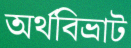
অর্থবিভ্রাট